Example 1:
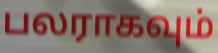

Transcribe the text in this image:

பலராகவும்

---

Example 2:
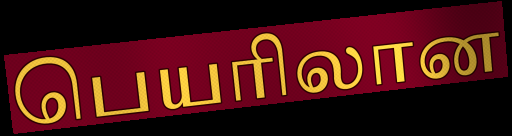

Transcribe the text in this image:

பெயரிலான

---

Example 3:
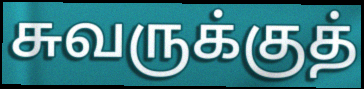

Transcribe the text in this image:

சுவருக்குத்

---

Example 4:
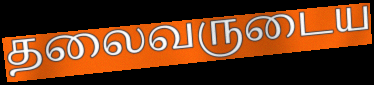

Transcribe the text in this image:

தலைவருடைய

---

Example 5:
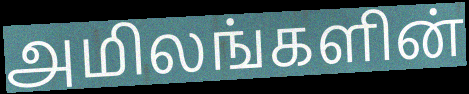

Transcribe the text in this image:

அமிலங்களின்